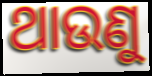
ଥାଉଣୁ